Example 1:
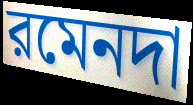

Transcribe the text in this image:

রমেনদা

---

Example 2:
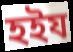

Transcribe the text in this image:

হইয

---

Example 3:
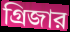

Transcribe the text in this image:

গ্রিজার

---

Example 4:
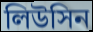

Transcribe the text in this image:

লিউসিন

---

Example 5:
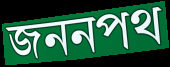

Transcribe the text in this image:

জননপথ